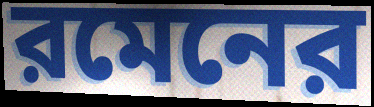
রমেনের